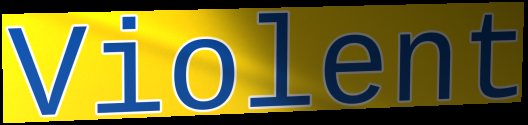
Violent